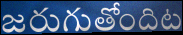
జరుగుతోందిట